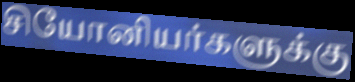
சியோனியர்களுக்கு